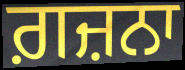
ਗ਼ਜ਼ਨਾ